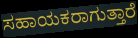
ಸಹಾಯಕರಾಗುತ್ತಾರೆ